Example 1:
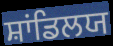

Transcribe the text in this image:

ਸ਼ਾਂਡਿਲਯ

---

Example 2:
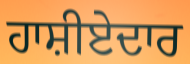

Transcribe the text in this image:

ਹਾਸ਼ੀਏਦਾਰ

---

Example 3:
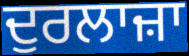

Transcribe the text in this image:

ਦੁਰਲਾਜ਼ਾ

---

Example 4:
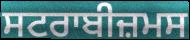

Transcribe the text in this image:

ਸਟਰਾਬੀਜ਼ਮਸ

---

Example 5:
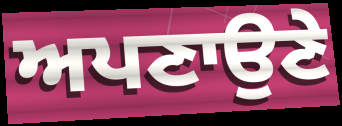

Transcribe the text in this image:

ਅਪਣਾਉਣੇ